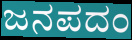
ಜನಪದಂ